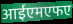
आईएमएफए